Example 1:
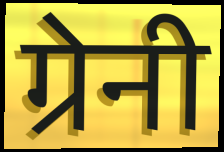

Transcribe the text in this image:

ग्रेनी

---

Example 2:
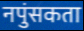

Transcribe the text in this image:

नपुंसकता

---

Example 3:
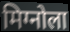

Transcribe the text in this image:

मिग्नोला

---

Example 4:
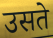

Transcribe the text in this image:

उसते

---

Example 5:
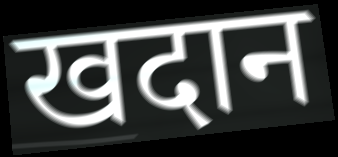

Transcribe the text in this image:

खदान